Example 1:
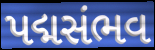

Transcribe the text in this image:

પદ્મસંભવ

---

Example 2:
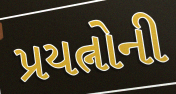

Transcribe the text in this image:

પ્રયત્નોની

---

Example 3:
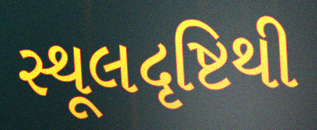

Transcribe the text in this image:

સ્થૂલદૃષ્ટિથી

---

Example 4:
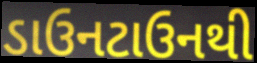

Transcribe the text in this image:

ડાઉનટાઉનથી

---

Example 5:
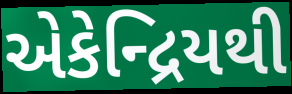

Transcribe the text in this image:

એકેન્દ્રિયથી